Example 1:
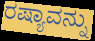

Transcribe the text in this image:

ರಷ್ಯಾವನ್ನು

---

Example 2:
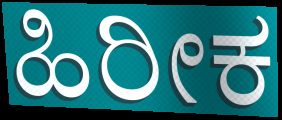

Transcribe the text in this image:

ಹಿರೀಕ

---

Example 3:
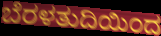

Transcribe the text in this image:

ಬೆರಳತುದಿಯಿಂದ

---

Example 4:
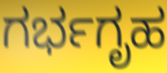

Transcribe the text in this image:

ಗರ್ಭಗೃಹ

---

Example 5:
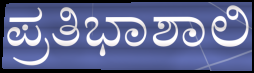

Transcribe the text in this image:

ಪ್ರತಿಭಾಶಾಲಿ